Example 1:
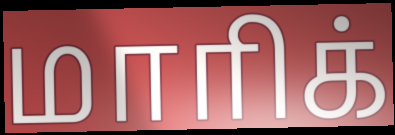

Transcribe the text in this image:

மாரிக்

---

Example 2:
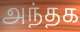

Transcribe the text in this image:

அந்தக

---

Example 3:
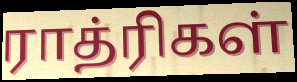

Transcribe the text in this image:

ராத்ரிகள்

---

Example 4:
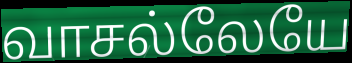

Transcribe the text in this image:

வாசல்லேயே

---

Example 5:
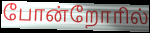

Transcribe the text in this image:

போன்றோரில்